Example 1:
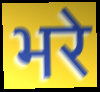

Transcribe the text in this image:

भरे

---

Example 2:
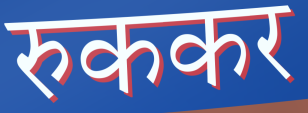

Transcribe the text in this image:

रुककर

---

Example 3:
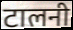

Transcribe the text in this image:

टालनी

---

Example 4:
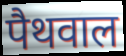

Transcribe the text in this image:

पैथवाल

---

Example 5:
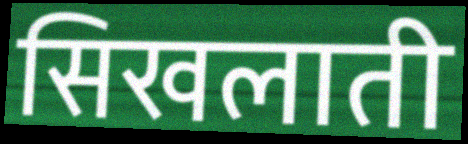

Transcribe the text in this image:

सिखलाती